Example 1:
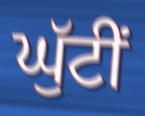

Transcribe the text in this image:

ਘੁੱਟੀਂ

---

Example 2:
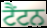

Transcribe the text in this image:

ਟੈਂਟਨ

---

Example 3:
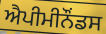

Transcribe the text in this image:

ਐਪੀਮੀਨੌਂਡਸ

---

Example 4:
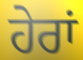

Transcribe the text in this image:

ਹੇਰਾਂ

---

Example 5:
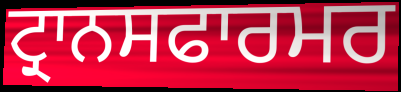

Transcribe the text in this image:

ਟ੍ਰਾਨਸਫਾਰਮਰ